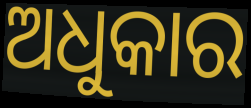
ଅଧୁକାର